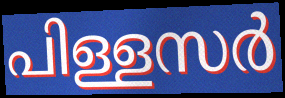
പിള്ളസർ